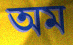
অম